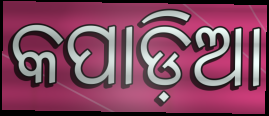
କପାଡ଼ିଆ